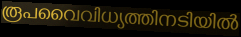
രൂപവൈവിധ്യത്തിനടിയിൽ